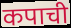
कपाची